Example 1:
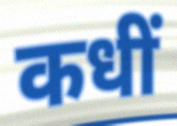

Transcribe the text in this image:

कधीं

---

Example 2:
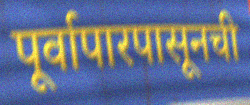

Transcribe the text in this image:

पूर्वापारपासूनची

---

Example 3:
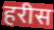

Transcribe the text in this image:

हरीस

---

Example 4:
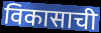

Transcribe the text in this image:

विकासाची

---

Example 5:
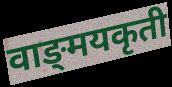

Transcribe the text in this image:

वाङ्‌मयकृती